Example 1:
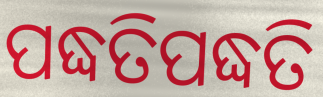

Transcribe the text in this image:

ପଦ୍ଧତିପଦ୍ଧତି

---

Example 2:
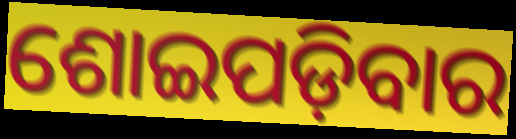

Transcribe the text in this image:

ଶୋଇପଡ଼ିବାର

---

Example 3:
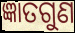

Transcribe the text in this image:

ଜ୍ଞାତଗୁଣ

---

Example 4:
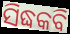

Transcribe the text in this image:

ସିଦ୍ଧକବି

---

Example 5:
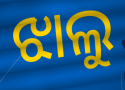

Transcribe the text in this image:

ଝାଲୁ